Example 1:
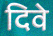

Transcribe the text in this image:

दिवे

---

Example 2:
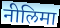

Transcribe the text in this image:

नीलिमा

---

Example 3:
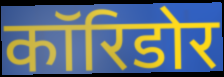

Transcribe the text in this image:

कॉरिडोर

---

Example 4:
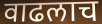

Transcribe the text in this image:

वाढलाच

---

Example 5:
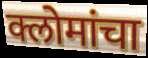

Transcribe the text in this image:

क्लोमांचा